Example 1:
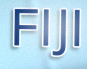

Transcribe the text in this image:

FIJI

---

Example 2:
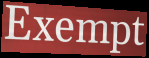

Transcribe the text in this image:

Exempt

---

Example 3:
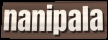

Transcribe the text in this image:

nanipala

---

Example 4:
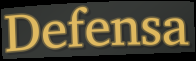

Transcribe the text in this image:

Defensa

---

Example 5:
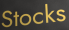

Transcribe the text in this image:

Stocks